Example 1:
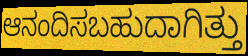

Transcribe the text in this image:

ಆನಂದಿಸಬಹುದಾಗಿತ್ತು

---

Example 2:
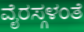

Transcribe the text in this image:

ವೈರಸ್ಗಳಂತೆ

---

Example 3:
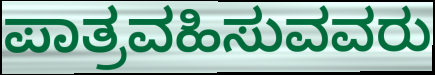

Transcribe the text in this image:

ಪಾತ್ರವಹಿಸುವವರು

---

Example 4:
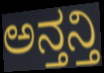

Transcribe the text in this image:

ಅನ್ತನ್ತಿ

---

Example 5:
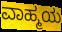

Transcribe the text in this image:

ವಾಹ್ಮಯ